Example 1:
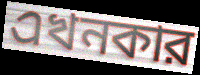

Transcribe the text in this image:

এখনকার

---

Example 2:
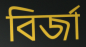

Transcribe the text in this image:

বির্জা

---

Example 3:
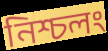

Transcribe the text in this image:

নিশ্চলং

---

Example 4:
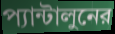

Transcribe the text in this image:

প্যান্টালুনের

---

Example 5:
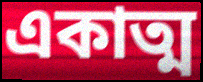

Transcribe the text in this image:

একাত্ম